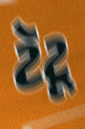
ટૅટૂ